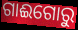
ଗାଈଗୋରୁ